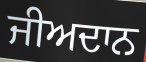
ਜੀਅਦਾਨ